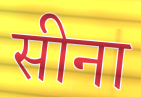
सीना